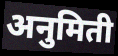
अनुमिती